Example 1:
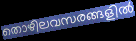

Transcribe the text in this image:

തൊഴിലവസരങ്ങളിൽ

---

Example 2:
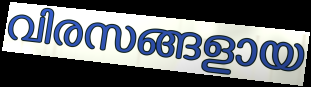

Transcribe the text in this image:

വിരസങ്ങളായ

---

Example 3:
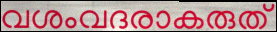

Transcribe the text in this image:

വശംവദരാകരുത്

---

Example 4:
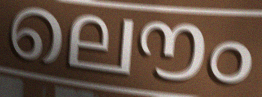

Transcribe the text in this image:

ലൌം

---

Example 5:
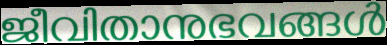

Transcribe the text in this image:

ജീവിതാനുഭവങ്ങൾ